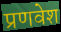
प्रणवेश